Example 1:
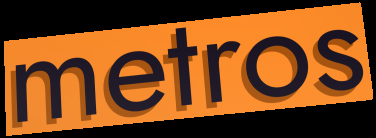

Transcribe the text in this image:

metros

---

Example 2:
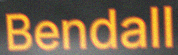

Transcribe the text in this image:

Bendall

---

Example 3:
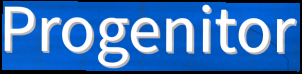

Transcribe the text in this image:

Progenitor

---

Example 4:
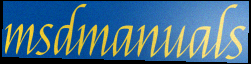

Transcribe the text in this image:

msdmanuals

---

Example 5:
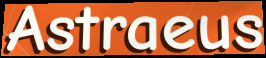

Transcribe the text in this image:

Astraeus